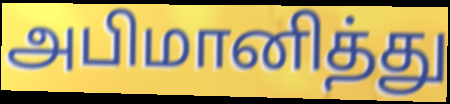
அபிமானித்து